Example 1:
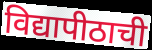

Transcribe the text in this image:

विद्यापीठाची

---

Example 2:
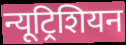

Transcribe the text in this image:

न्यूट्रिशियन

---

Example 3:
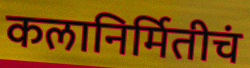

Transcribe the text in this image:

कलानिर्मितीचं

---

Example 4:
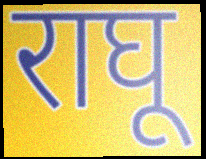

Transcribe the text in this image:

राघू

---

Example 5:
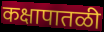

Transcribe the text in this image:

कक्षापातळी